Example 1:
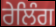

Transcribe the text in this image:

ਰੇਲਿੰਗ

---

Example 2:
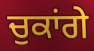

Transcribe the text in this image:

ਚੁਕਾਂਗੇ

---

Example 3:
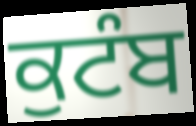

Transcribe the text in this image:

ਕੁਟੰਬ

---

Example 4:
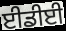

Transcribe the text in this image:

ਈਡੀਈ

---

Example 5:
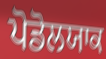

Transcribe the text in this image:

ਪੋਡੋਲਯਾਕ